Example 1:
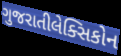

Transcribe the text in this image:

ગુજરાતીલેક્સિકોન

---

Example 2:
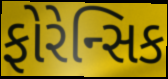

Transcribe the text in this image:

ફોરેન્સિક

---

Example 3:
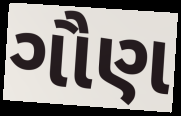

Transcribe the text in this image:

ગૌણ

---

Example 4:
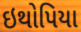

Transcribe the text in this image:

ઇથોપિયા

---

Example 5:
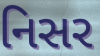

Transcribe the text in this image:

નિસર